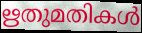
ഋതുമതികൾ